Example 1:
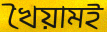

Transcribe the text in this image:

খৈয়ামই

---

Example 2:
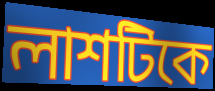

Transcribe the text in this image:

লাশটিকে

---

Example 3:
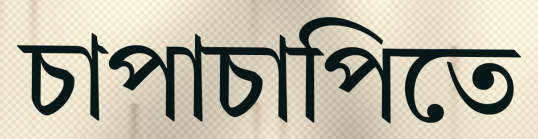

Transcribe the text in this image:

চাপাচাপিতে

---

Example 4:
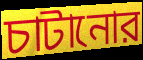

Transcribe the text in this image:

চাটানোর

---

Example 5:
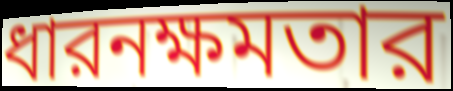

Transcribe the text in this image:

ধারনক্ষমতার